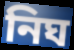
নিঘ